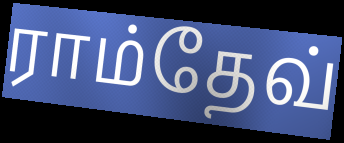
ராம்தேவ்